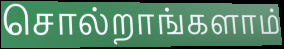
சொல்றாங்களாம்